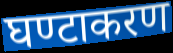
घण्टाकरण